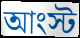
আংস্ট